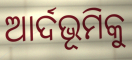
ଆର୍ଦଭୂମିକୁ